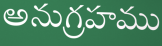
అనుగ్రహము